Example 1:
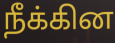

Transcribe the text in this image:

நீக்கின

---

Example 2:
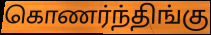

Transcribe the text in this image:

கொணர்ந்திங்கு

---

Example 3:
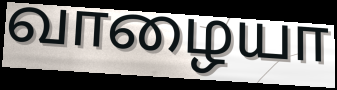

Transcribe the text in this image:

வாழையா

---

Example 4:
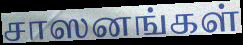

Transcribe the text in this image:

சாஸனங்கள்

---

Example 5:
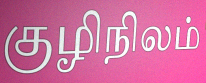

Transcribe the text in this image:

குழிநிலம்